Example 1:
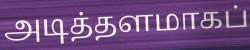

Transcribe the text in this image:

அடித்தளமாகப்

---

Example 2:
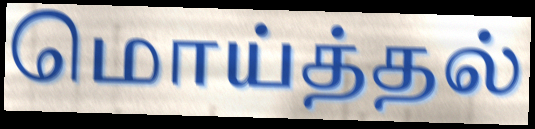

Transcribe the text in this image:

மொய்த்தல்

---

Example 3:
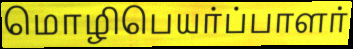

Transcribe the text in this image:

மொழிபெயர்ப்பாளர்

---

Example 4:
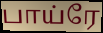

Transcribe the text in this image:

பாய்ரே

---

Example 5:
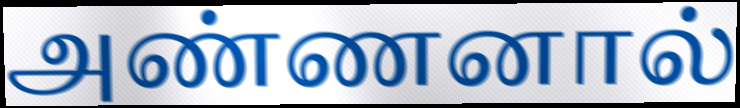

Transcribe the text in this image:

அண்ணனால்